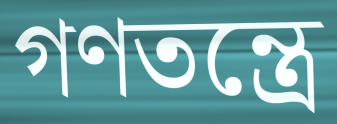
গণতন্ত্রে